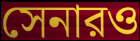
সেনারও